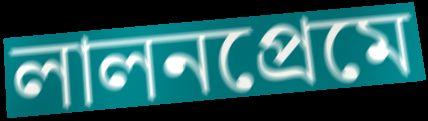
লালনপ্রেমে